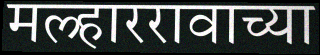
मल्हाररावाच्या